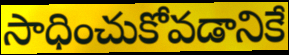
సాధించుకోవడానికే